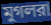
মুগলরা